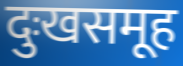
दुःखसमूह